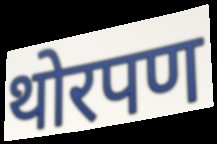
थोरपण